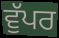
ਵੁੱਪਰ